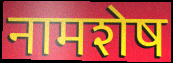
नामशेष